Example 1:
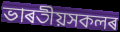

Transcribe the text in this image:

ভাৰতীয়সকলৰ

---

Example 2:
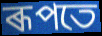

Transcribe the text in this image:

ৰূপতে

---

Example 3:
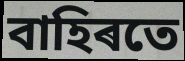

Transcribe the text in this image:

বাহিৰতে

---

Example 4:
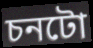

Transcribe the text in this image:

চনটো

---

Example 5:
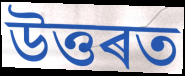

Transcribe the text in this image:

উত্তৰত